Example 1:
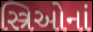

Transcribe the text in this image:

સ્ત્રિઓનાં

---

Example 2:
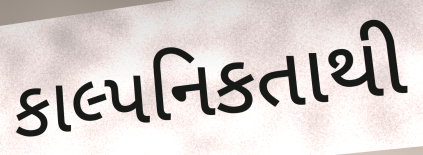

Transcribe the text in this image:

કાલ્પનિકતાથી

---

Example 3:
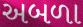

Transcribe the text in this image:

અબળા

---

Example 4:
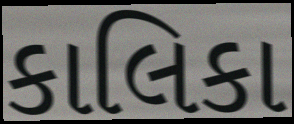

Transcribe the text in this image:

કાલિકા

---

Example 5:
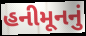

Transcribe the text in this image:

હનીમૂનનું